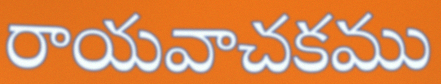
రాయవాచకము